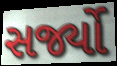
સર્જ્યો